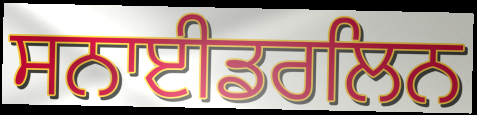
ਸਨਾਈਡਰਲਿਨ